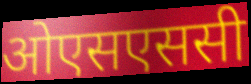
ओएसएससी